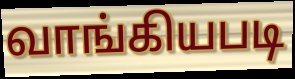
வாங்கியபடி